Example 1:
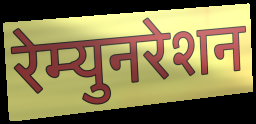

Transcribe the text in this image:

रेम्युनरेशन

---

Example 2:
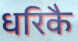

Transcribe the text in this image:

धरिकै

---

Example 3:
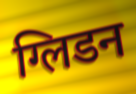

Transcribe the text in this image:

ग्लिडन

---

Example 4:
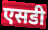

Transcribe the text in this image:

एसडी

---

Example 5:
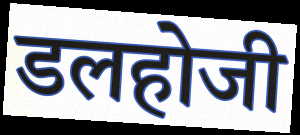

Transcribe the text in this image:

डलहोजी